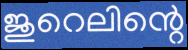
ജുറെലിന്റെ